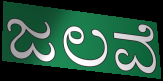
ಜಲವೆ